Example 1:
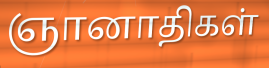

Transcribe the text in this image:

ஞானாதிகள்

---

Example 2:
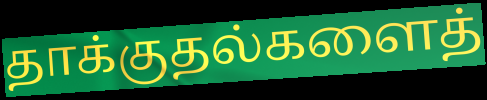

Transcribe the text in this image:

தாக்குதல்களைத்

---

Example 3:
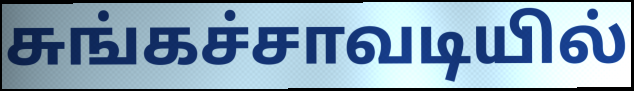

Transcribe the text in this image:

சுங்கச்சாவடியில்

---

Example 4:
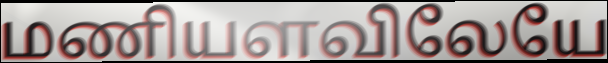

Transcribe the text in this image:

மணியளவிலேயே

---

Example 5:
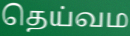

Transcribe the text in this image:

தெய்வம